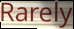
Rarely